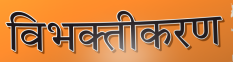
विभक्तीकरण